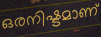
ഒരനിഷ്ടമാണ്